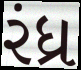
રંધ્ર